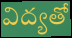
విద్యతో